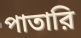
পাতারি